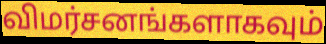
விமர்சனங்களாகவும்